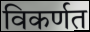
विकर्णत